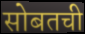
सोबतची